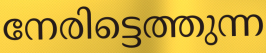
നേരിട്ടെത്തുന്ന